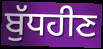
ਬੁੱਧਹੀਣ